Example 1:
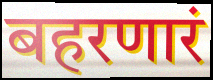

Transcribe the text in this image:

बहरणारं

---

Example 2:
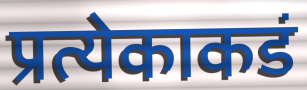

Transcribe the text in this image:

प्रत्येकाकडं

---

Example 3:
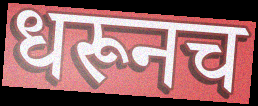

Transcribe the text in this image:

धरूनच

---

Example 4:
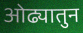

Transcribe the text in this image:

ओढ्यातुन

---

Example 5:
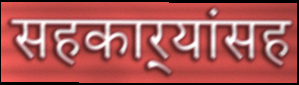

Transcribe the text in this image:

सहकार्यांसह